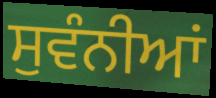
ਸੁਵੰਨੀਆਂ